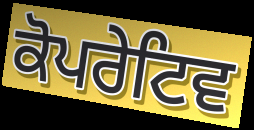
ਕੋਪਰੇਟਿਵ